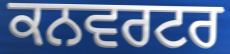
ਕਨਵਰਟਰ